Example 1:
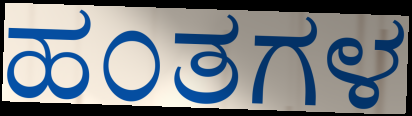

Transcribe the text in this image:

ಹಂತಗಳ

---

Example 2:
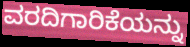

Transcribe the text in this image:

ವರದಿಗಾರಿಕೆಯನ್ನು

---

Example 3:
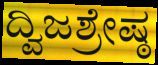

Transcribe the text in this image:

ದ್ವಿಜಶ್ರೇಷ್ಠ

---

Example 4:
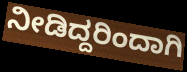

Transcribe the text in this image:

ನೀಡಿದ್ದರಿಂದಾಗಿ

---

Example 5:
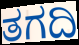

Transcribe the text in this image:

ತಗದಿ